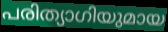
പരിത്യാഗിയുമായ